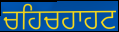
ਚਹਿਚਹਾਹਟ